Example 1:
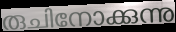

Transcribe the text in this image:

രുചിനോക്കുന്നു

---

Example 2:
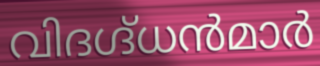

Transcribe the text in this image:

വിദഗ്ദ്ധൻമാർ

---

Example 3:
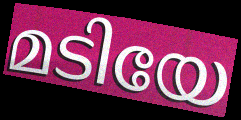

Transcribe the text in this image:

മടിയേ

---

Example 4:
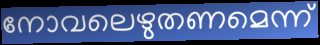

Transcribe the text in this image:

നോവലെഴുതണമെന്ന്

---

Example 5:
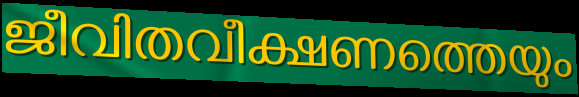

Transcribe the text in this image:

ജീവിതവീക്ഷണത്തെയും